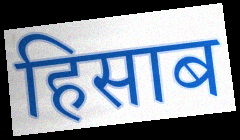
हिसाब